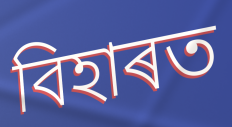
বিহাৰত